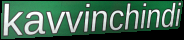
kavvinchindi